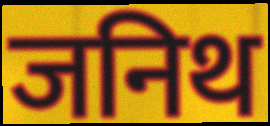
जनिथ